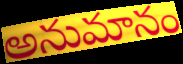
అనుమానం